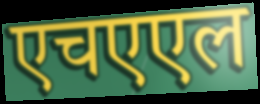
एचएएल